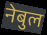
नेबुल